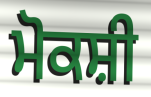
ਮੋਕਸ਼ੀ